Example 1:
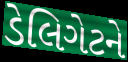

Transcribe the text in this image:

ડેલિગેટને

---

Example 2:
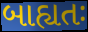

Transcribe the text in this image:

બાહ્યતઃ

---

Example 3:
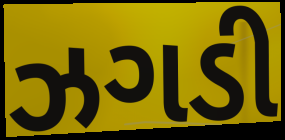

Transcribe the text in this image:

ઝગડી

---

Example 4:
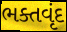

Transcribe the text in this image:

ભક્તવૃંદ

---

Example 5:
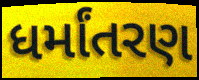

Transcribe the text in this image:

ધર્માંતરણ